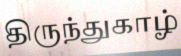
திருந்துகாழ்